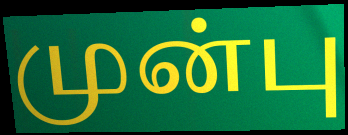
முன்பு